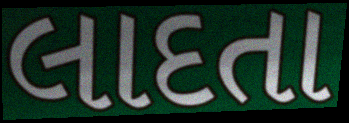
લાદતા